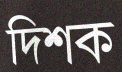
দিশক